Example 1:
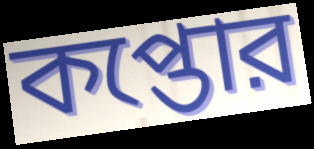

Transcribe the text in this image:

কপ্তোর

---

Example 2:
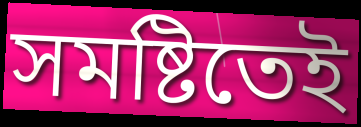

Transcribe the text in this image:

সমষ্টিতেই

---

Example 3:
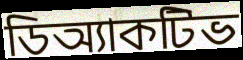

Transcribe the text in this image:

ডিঅ্যাকটিভ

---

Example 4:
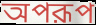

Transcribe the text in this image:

অপরূপ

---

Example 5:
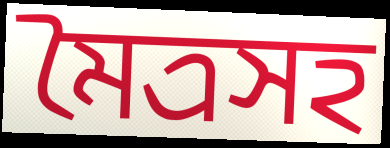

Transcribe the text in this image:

মৈত্রসহ